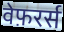
वेफ़रर्स